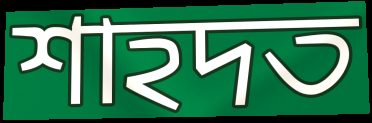
শাহদত